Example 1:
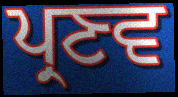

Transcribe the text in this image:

ਪ੍ਰਣਵ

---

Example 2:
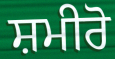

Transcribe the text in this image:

ਸ਼ਮੀਰੋ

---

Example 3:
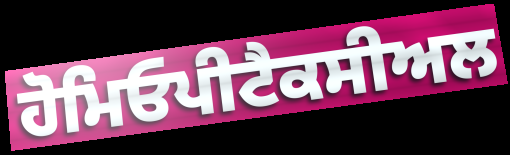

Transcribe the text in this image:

ਹੋਮਿਓਪੀਟੈਕਸੀਅਲ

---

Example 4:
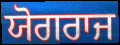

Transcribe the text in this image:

ਯੋਗਰਾਜ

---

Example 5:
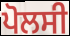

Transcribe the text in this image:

ਪੋਲਸੀ